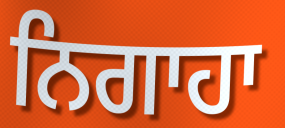
ਨਿਗਾਹਾ